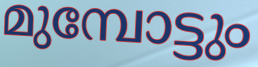
മുമ്പോട്ടും